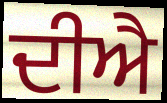
ਦੀਐ